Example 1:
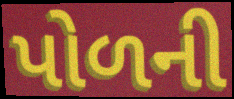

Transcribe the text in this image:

પોળની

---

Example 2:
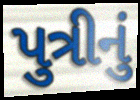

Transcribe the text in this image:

પુત્રીનું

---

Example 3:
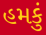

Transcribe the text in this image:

હમકું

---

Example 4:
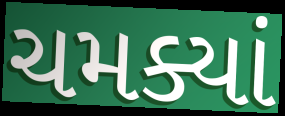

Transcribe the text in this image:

ચમક્યાં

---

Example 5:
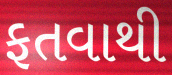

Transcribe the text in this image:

ફતવાથી